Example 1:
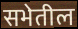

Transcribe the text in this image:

सभेतील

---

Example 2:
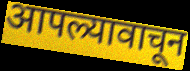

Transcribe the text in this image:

आपल्यावाचून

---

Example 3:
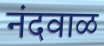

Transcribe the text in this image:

नंदवाळ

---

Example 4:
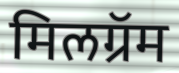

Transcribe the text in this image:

मिलग्रॅम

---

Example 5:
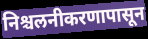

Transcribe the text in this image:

निश्चलनीकरणापासून